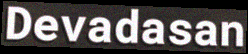
Devadasan